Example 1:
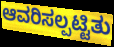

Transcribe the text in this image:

ಆವರಿಸಲ್ಪಟ್ಟಿತು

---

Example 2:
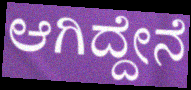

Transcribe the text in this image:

ಆಗಿದ್ದೇನೆ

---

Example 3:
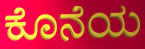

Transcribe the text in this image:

ಕೊನೆಯ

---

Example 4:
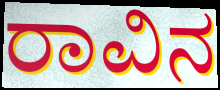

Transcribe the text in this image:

ರಾವಿನ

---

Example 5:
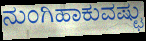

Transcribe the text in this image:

ನುಂಗಿಹಾಕುವಷ್ಟು